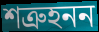
শত্রুহনন